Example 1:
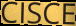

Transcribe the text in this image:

CISCE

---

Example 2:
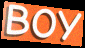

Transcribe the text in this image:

BOY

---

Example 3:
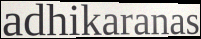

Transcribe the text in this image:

adhikaranas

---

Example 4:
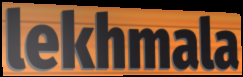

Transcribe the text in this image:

lekhmala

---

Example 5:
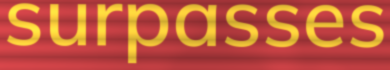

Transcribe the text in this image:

surpasses